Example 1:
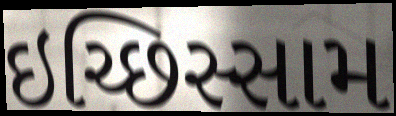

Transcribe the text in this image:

ઇચ્છિસ્સામ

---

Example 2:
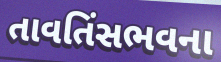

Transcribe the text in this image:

તાવતિંસભવના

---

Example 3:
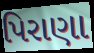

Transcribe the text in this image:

પિરાણા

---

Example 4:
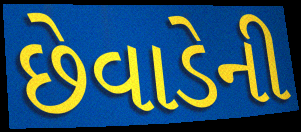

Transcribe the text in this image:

છેવાડેની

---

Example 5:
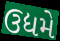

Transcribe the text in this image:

ઉદ્યમે